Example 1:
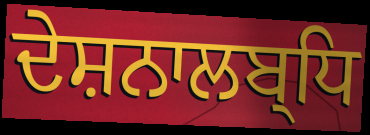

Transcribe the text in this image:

ਦੇਸ਼ਨਾਲਬ੍ਧਿ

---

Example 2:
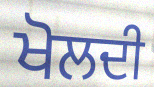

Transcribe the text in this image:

ਖੋਲਦੀ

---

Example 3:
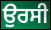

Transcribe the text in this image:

ਉਰਸੀ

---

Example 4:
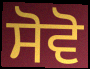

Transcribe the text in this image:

ਸੋਵੋ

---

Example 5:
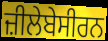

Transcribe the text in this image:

ਜ਼ੀਲੇਬੇਸੀਰਨ